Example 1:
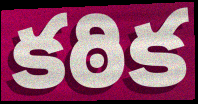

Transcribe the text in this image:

కఠిక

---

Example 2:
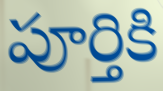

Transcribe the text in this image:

పూర్తికి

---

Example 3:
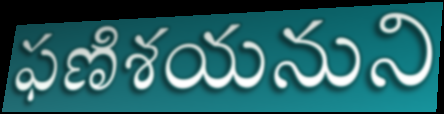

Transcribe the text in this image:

ఫణిశయనుని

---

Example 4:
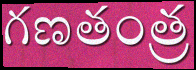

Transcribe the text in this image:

గణతంత్ర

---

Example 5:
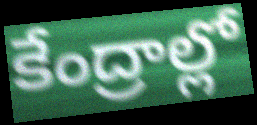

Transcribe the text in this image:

కేంద్రాల్లో